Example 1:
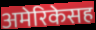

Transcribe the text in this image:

अमेरिकेसह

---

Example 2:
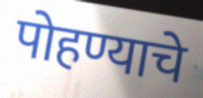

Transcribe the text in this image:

पोहण्याचे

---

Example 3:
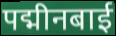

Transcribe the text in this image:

पद्मीनबाई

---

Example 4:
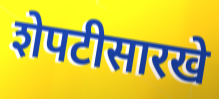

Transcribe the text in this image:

शेपटीसारखे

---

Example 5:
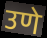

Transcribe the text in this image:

उणे